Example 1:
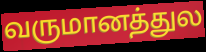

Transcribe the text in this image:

வருமானத்துல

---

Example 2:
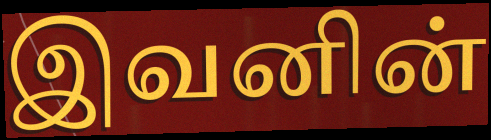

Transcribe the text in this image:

இவனின்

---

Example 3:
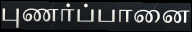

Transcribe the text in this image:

புணர்ப்பானை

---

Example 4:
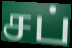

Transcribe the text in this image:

சப்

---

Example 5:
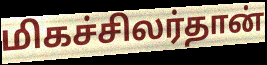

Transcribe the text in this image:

மிகச்சிலர்தான்